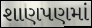
શાણપણમાં